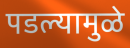
पडल्यामुळे